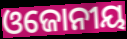
ଓଜୋନୀୟ